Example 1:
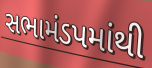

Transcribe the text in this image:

સભામંડપમાંથી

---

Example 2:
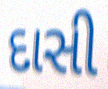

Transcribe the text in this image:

દાસી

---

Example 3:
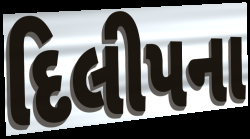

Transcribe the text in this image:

દિલીપના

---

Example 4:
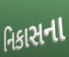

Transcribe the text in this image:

નિકાસના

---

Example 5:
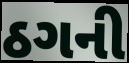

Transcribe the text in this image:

ઠગની